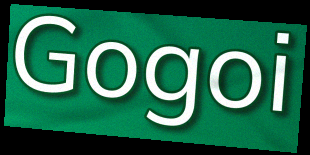
Gogoi